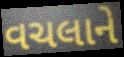
વચલાને